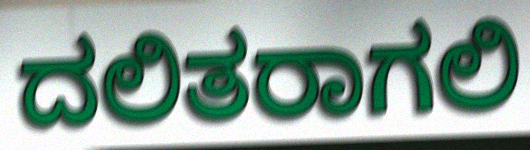
ದಲಿತರಾಗಲಿ